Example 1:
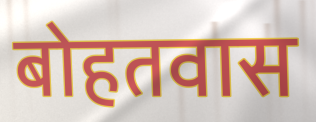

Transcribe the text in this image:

बोहतवास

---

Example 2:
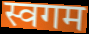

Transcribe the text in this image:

स्वगम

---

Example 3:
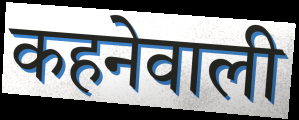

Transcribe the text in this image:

कहनेवाली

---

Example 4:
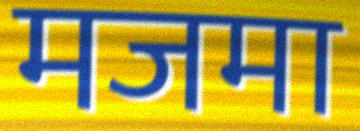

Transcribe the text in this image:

मजमा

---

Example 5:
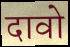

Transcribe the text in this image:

दावो